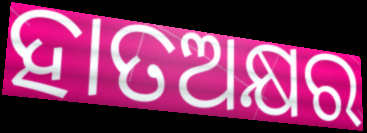
ହାତଅକ୍ଷର